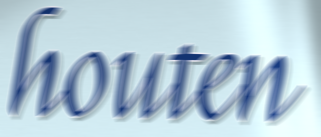
houten